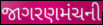
જાગરણમંચની